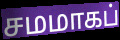
சமமாகப்